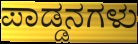
ಪಾಡ್ಡನಗಳು